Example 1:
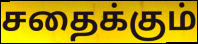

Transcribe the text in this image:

சதைக்கும்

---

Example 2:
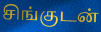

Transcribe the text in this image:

சிங்குடன்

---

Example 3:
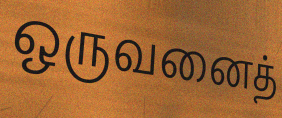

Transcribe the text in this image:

ஒருவனைத்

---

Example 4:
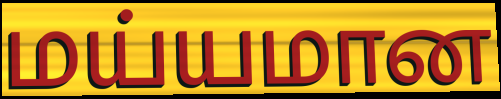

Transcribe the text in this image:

மய்யமான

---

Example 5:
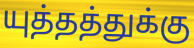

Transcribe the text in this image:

யுத்தத்துக்கு